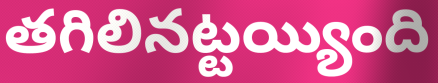
తగిలినట్టయ్యింది